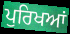
ਪੁਰਿਖਆਂ